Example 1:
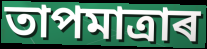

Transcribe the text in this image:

তাপমাত্ৰাৰ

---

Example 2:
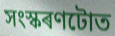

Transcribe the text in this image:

সংস্কৰণটোত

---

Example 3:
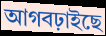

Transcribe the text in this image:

আগবঢ়াইছে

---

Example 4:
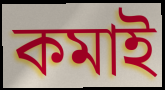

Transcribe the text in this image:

কমাই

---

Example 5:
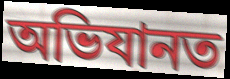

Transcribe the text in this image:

অভিযানত